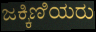
ಜಕ್ಕಿಣಿಯರು